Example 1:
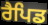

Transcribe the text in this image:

ਰੈਪਿਡ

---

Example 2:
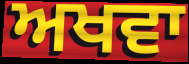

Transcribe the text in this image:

ਅਖਵਾ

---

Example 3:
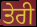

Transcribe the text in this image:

ਤੇਰੀ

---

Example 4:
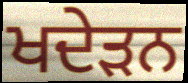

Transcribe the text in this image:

ਖਦੇੜਨ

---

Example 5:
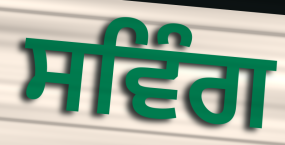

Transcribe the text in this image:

ਸਵਿੰਗ